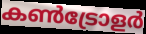
കൺട്രോളർ